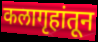
कलागृहांतून